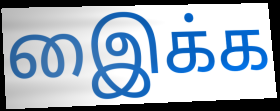
இைக்க